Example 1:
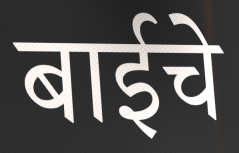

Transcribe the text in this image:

बाईचे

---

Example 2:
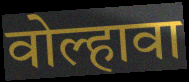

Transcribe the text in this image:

वोल्हावा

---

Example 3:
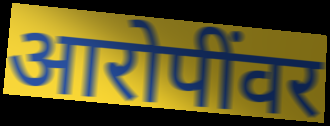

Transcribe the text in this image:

आरोपींवर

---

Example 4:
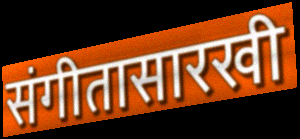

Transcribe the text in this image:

संगीतासारखी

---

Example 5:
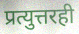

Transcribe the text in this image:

प्रत्युत्तरही